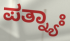
ಪತ್ನ್ಯಾಃ